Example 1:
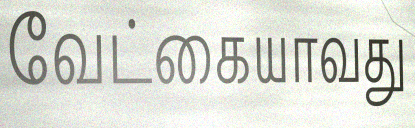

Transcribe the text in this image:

வேட்கையாவது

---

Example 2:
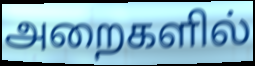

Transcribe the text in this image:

அறைகளில்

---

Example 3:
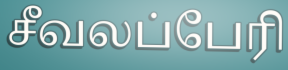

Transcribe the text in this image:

சீவலப்பேரி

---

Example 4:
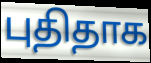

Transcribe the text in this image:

புதிதாக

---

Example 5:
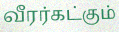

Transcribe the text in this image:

வீரர்கட்கும்